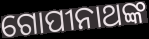
ଗୋପୀନାଥଙ୍କ